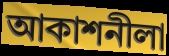
আকাশনীলা